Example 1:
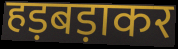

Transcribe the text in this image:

हड़बड़ाकर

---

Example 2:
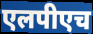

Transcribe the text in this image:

एलपीएच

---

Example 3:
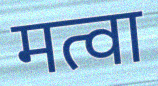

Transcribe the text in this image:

मत्वा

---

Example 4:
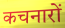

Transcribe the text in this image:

कचनारों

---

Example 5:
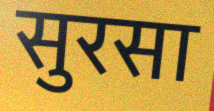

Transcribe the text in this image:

सुरसा